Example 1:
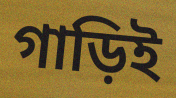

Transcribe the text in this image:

গাড়িই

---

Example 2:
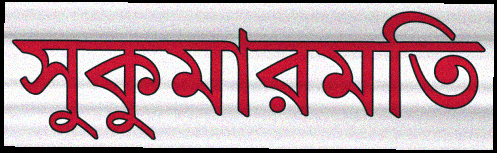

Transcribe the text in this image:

সুকুমারমতি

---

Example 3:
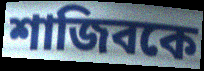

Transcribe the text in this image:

শাজিবকে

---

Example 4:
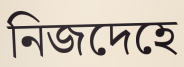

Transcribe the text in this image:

নিজদেহে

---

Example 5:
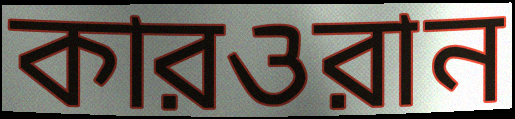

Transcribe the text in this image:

কারওরান